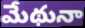
మేథునా